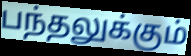
பந்தலுக்கும்